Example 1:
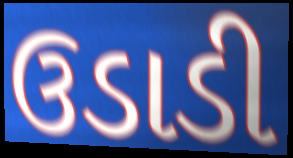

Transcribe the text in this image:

ઉડાડી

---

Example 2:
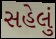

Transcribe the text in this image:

સહેલું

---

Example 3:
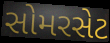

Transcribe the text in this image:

સોમરસેટ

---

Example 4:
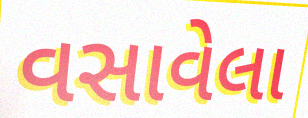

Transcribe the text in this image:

વસાવેલા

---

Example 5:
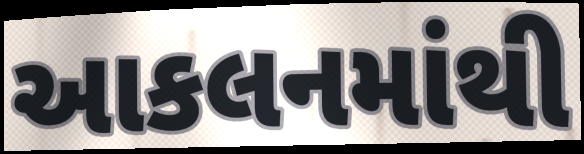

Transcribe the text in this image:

આકલનમાંથી